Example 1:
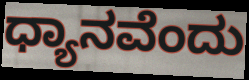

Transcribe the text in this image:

ಧ್ಯಾನವೆಂದು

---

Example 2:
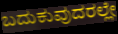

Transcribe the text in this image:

ಬದುಕುವುದರಲ್ಲೇ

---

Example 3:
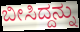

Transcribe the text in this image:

ಬೀಸಿದ್ದನ್ನು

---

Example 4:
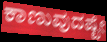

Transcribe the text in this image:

ಕಾಣುವುದಷ್ಟೇ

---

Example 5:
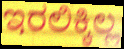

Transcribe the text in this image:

ಇರಲಿಕ್ಕಿಲ್ಲ